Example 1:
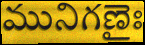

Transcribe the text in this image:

మునిగణైః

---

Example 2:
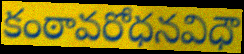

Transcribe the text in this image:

కంఠావరోధనవిధౌ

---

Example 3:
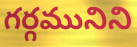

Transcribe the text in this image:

గర్గమునిని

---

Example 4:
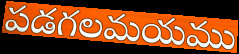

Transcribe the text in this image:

పడగలమయము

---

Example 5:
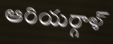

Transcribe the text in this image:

ఆరియర్గాళ్